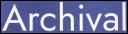
Archival